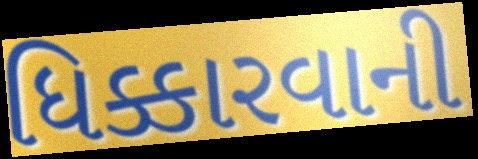
ધિક્કારવાની